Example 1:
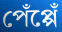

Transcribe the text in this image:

পেঁপ্পেঁ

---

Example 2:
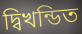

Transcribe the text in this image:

দ্বিখন্ডিত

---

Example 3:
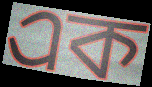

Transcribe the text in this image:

এক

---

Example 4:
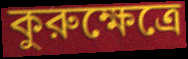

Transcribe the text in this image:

কুরুক্ষেত্রে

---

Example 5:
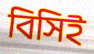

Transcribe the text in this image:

বিসিই